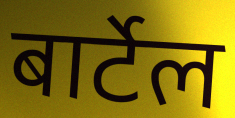
बार्टेल